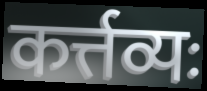
कर्त्तव्यः